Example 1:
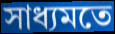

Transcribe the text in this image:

সাধ্যমতে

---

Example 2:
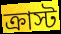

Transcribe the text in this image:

ক্রাস্ট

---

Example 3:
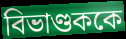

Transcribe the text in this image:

বিভাণ্ডককে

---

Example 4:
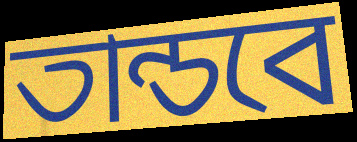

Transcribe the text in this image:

তান্ডবে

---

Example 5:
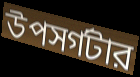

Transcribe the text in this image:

উপসর্গটার